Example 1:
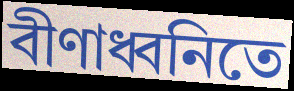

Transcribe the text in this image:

বীণাধ্বনিতে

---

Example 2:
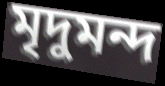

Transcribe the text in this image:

মৃদুমন্দ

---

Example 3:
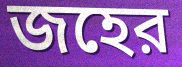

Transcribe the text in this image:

জহের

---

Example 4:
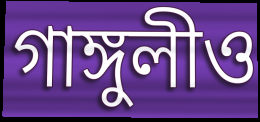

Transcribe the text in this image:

গাঙ্গুলীও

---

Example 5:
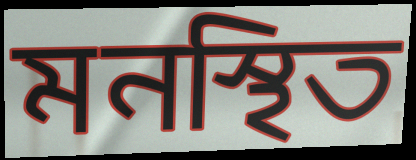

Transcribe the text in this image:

মনস্থিত